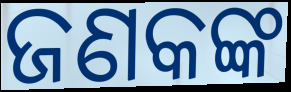
ଜଣକଙ୍କ